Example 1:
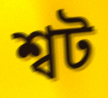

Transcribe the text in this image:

শ্বট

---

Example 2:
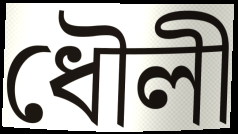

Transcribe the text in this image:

ধৌলী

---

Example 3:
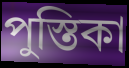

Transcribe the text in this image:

পুস্তিকা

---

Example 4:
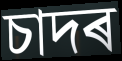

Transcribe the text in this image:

চাদৰ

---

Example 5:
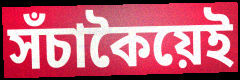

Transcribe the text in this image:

সঁচাকৈয়েই